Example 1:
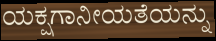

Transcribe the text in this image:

ಯಕ್ಷಗಾನೀಯತೆಯನ್ನು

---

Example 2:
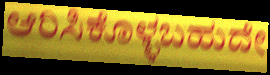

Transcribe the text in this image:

ಆರಿಸಿಕೊಳ್ಳಬಹುದೇ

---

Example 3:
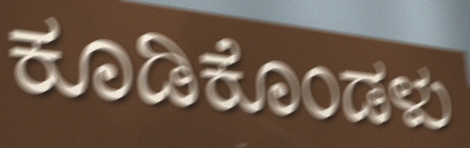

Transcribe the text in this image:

ಕೂಡಿಕೊಂಡಳು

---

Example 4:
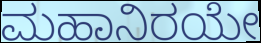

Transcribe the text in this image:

ಮಹಾನಿರಯೇ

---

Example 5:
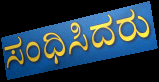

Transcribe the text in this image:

ಸಂಧಿಸಿದರು